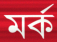
মর্ক